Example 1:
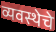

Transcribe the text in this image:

व्यवस्थेचे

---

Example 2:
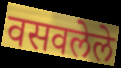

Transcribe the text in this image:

वसवलेले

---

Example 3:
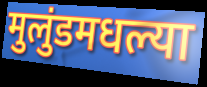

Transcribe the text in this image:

मुलुंडमधल्या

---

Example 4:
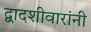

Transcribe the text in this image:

द्वादशीवारांनी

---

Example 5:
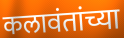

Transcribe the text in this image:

कलावंतांच्या